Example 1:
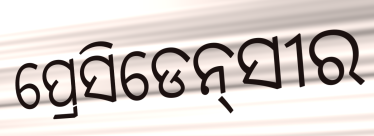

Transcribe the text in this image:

ପ୍ରେସିଡେନ୍‌ସୀର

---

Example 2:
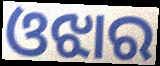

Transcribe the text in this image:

ଓଝାର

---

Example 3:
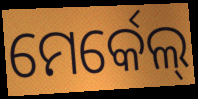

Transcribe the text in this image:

ମେର୍କେଲ୍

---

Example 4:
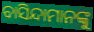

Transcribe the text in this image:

ବାସିନ୍ଦାମାନଙ୍କୁ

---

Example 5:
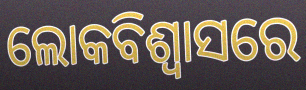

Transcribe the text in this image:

ଲୋକବିଶ୍ୱାସରେ